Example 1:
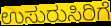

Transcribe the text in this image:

ಉಸುರುಸಿರಿಗೆ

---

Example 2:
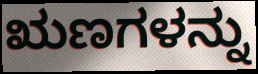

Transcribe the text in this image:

ಋಣಗಳನ್ನು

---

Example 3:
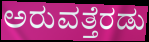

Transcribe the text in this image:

ಅರುವತ್ತೆರಡು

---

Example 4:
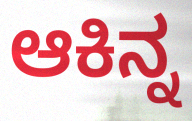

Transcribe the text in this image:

ಆಕಿನ್ನ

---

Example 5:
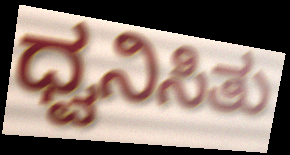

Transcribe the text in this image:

ಧ್ವನಿಸಿತು